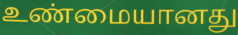
உண்மையானது